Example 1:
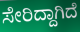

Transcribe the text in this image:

ಸೇರಿದ್ದಾಗಿದೆ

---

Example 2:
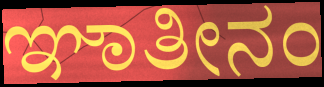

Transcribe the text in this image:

ಞಾತೀನಂ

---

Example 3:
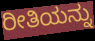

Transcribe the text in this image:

ರೀತಿಯನ್ನು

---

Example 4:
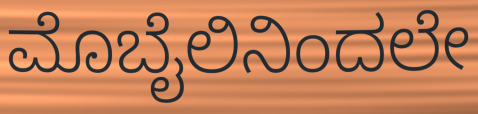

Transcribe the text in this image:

ಮೊಬೈಲಿನಿಂದಲೇ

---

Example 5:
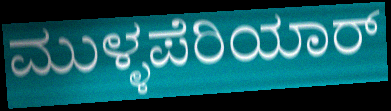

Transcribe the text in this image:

ಮುಳ್ಳಪೆರಿಯಾರ್